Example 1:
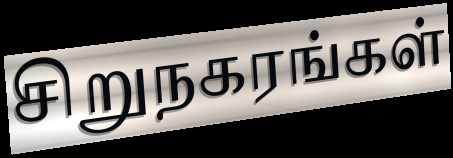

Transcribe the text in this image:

சிறுநகரங்கள்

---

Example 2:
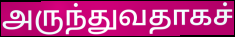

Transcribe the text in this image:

அருந்துவதாகச்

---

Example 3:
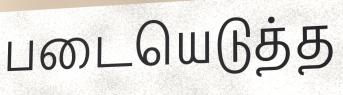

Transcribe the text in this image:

படையெடுத்த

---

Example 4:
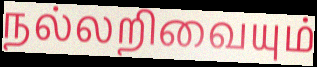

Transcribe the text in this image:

நல்லறிவையும்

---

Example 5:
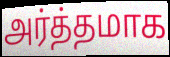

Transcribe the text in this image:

அர்த்தமாக